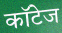
कॉटेज